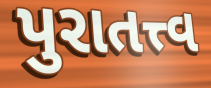
પુરાતત્ત્વ